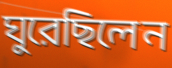
ঘুরেছিলেন